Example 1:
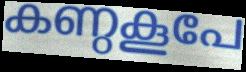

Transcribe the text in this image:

കണ്ഠകൂപേ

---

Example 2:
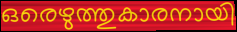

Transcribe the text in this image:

ഒരെഴുത്തുകാരനായി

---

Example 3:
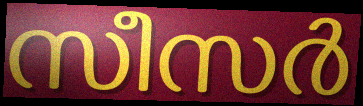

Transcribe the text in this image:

സീസർ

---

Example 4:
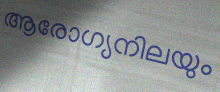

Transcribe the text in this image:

ആരോഗ്യനിലയും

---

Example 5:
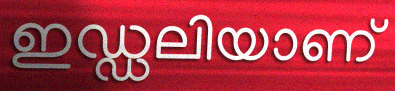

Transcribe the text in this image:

ഇഡ്ഡലിയാണ്